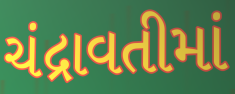
ચંદ્રાવતીમાં